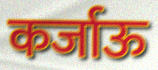
कर्जाऊ